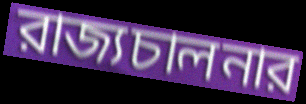
রাজ্যচালনার